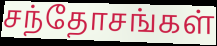
சந்தோசங்கள்